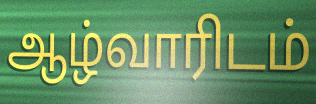
ஆழ்வாரிடம்